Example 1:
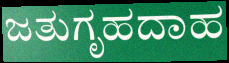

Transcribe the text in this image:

ಜತುಗೃಹದಾಹ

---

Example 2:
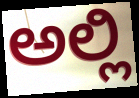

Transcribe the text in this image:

ಅಲ್ಲಿ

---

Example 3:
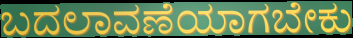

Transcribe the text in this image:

ಬದಲಾವಣೆಯಾಗಬೇಕು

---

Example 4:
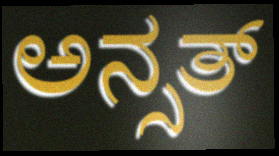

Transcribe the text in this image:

ಅನ್ಸತ್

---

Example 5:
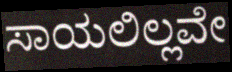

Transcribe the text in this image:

ಸಾಯಲಿಲ್ಲವೇ